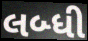
લબ્ધી